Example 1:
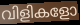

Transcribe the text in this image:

വിളികളോ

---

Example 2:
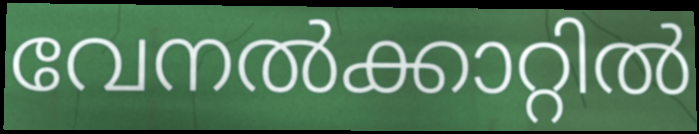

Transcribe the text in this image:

വേനൽക്കാറ്റിൽ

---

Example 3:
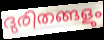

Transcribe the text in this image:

ദുരിതങ്ങളും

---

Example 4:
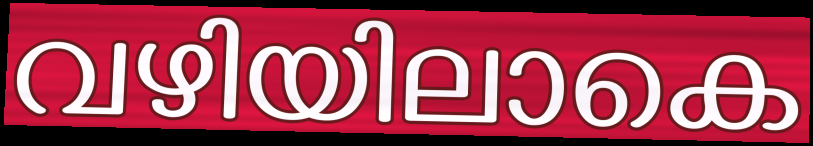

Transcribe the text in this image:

വഴിയിലാകെ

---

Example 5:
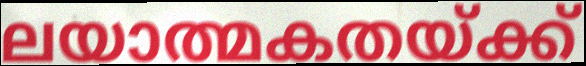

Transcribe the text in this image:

ലയാത്മകതയ്ക്ക്